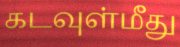
கடவுள்மீது